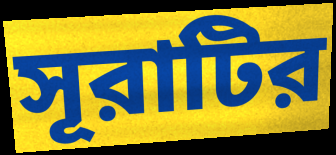
সূরাটির